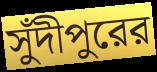
সুঁদীপুরের